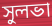
সুলভা